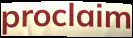
proclaim